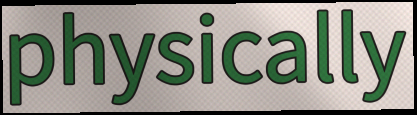
physically